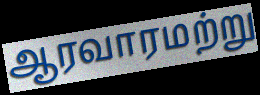
ஆரவாரமற்று